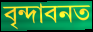
বৃন্দাবনত